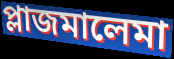
প্লাজমালেমা